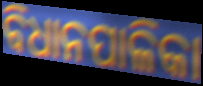
ବିଧାନପାଳିକା